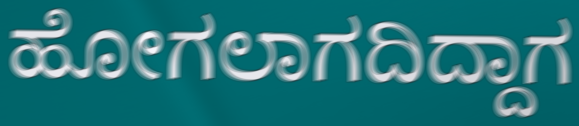
ಹೋಗಲಾಗದಿದ್ದಾಗ